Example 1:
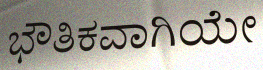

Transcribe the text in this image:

ಭೌತಿಕವಾಗಿಯೇ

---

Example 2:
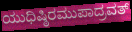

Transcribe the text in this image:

ಯುಧಿಷ್ಠಿರಮುಪಾದ್ರವತ್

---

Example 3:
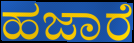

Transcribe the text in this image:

ಹಜಾರೆ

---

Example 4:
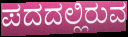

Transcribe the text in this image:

ಪದದಲ್ಲಿರುವ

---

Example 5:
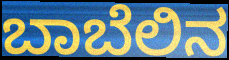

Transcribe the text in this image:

ಬಾಬೆಲಿನ